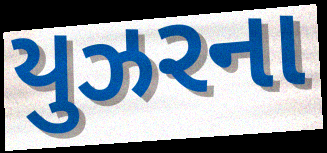
યુઝરના